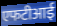
एफटीआई